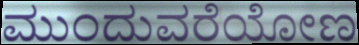
ಮುಂದುವರೆಯೋಣ